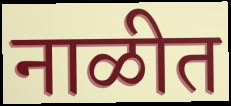
नाळीत